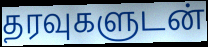
தரவுகளுடன்